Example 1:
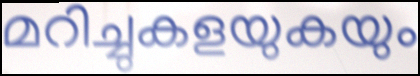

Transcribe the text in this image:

മറിച്ചുകളയുകയും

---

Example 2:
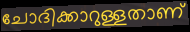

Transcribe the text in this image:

ചോദിക്കാറുള്ളതാണ്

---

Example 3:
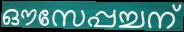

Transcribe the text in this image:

ഔസേപ്പച്ചന്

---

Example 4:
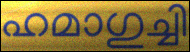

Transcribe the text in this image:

ഹമാഗുച്ചി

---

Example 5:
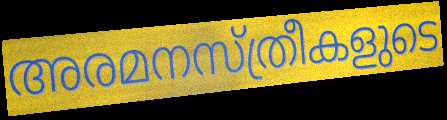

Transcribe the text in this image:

അരമനസ്ത്രീകളുടെ